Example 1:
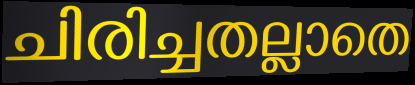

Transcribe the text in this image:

ചിരിച്ചതല്ലാതെ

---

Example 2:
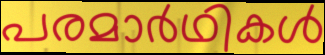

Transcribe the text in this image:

പരമാർഥികൾ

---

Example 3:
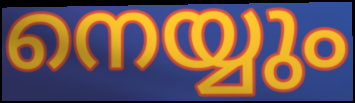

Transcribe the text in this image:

നെയ്യും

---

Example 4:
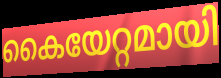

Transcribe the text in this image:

കൈയേറ്റമായി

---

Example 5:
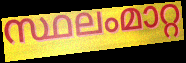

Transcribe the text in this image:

സ്ഥലംമാറ്റ